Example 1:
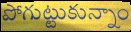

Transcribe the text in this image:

పోగుట్టుకున్నాం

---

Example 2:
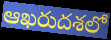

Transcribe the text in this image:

ఆఖరుదశలో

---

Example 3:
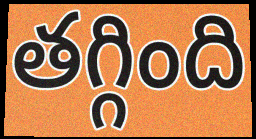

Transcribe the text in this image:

తగ్గింది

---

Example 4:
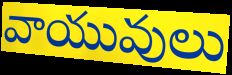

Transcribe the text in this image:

వాయువులు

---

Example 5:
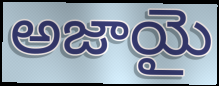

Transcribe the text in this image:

అజాయై